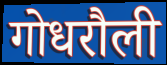
गोधरौली